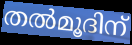
തൽമൂദിന്